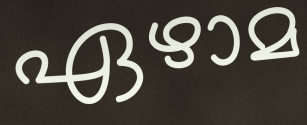
ഏഴാമ